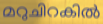
മറുചിറകിൽ